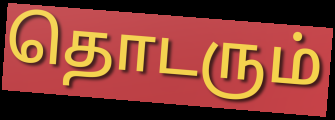
தொடரும்